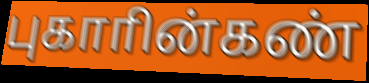
புகாரின்கண்